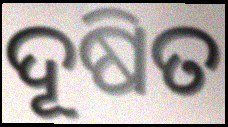
ଦୂଷିତ